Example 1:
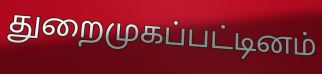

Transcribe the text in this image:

துறைமுகப்பட்டினம்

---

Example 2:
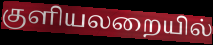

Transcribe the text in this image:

குளியலறையில்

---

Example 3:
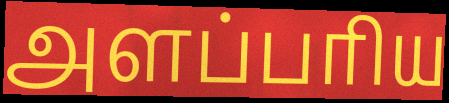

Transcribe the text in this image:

அளப்பரிய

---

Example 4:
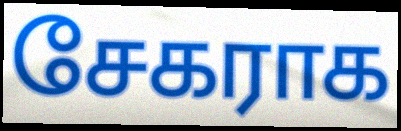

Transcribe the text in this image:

சேகராக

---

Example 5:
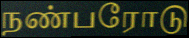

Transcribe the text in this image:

நண்பரோடு